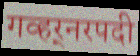
गव्हर्नरपदी